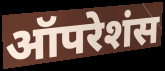
ऑपरेशंस